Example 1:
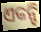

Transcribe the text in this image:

ଏକନ୍ଦି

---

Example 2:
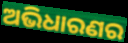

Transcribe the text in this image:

ଅଭିଧାରଣର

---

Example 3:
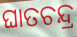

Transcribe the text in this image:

ଘାତଚନ୍ଦ୍ର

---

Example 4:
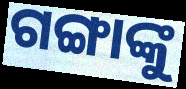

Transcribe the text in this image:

ଗଙ୍ଗାଙ୍କୁ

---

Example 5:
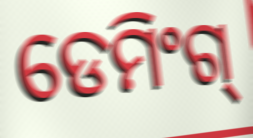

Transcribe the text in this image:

ଡେମିଂଗ୍